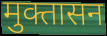
मुक्तासन